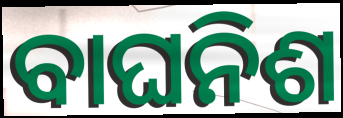
ବାଘନିଶ